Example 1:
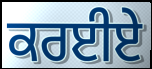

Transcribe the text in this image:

ਕਰਈਏ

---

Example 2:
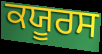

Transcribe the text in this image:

ਕਯੂਰਸ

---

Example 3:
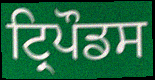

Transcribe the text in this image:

ਟ੍ਰਿਪੌਡਸ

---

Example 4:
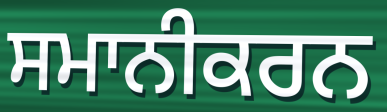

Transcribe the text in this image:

ਸਮਾਨੀਕਰਨ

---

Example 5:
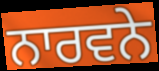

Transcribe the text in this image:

ਨਾਰਵਨੇ